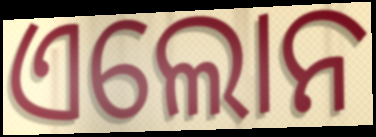
ଏଲୋନ